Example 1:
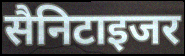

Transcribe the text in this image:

सैनिटाइजर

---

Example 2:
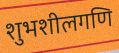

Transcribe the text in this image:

शुभशीलगणि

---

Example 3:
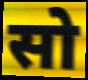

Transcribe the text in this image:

सो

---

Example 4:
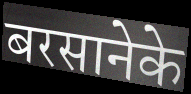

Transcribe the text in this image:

बरसानेके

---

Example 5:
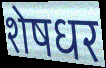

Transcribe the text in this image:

शेषधर